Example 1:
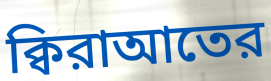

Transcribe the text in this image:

ক্বিরাআতের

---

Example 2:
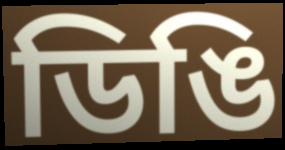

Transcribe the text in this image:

ডিঙি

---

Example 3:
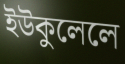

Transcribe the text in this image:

ইউকুলেলে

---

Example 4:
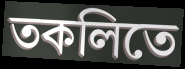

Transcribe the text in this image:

তকলিতে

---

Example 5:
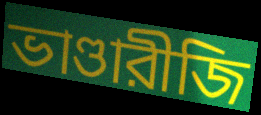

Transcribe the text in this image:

ভাণ্ডারীজি